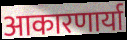
आकारणार्या